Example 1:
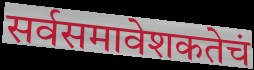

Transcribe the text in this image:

सर्वसमावेशकतेचं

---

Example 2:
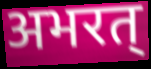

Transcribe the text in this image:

अभरत्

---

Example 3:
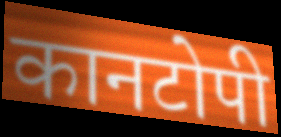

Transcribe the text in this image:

कानटोपी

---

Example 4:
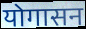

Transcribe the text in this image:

योगासन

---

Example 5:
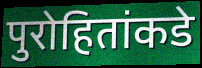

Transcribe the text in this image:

पुरोहितांकडे